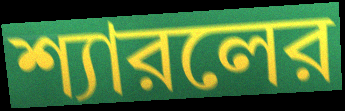
শ্যারলের